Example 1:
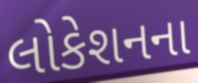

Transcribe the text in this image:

લોકેશનના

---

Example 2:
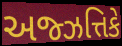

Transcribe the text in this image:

અજ્ઝત્તિકે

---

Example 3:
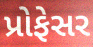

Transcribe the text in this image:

પ્રોફેસર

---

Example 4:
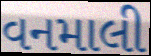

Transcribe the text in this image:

વનમાલી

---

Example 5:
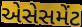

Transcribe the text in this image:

એસેસમેંટ